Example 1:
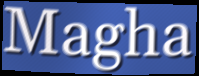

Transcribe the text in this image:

Magha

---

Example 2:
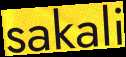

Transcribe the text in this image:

sakali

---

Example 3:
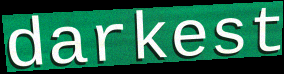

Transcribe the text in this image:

darkest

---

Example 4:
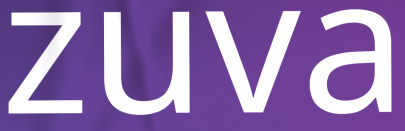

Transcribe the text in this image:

zuva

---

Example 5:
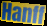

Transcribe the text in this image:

Hanff